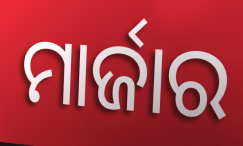
ମାର୍ଜାର